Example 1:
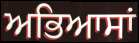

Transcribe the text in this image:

ਅਭਿਆਸਾਂ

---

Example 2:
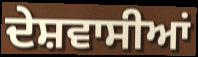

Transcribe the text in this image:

ਦੇਸ਼ਵਾਸੀਆਂ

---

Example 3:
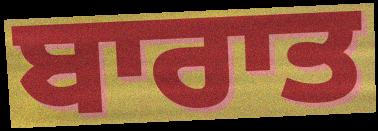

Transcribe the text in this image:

ਬਾਰਾਤ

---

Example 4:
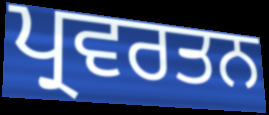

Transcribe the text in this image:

ਪ੍ਰਵਰਤਨ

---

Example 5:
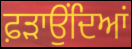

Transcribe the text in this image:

ਫ਼ੜਾਉਂਦਿਆਂ